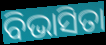
ବିଭାସିତା